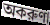
অকরুণা